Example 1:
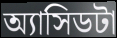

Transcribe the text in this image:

অ্যাসিডটা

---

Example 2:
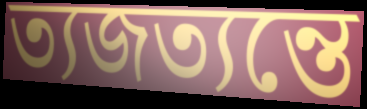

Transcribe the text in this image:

ত্যজত্যন্তে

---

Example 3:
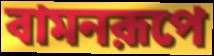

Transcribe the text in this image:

বামনরূপে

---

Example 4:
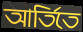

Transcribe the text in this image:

আর্তিতে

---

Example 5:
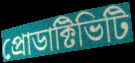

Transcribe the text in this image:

প্রোডাক্টিভিটি